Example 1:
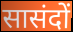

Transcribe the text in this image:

सासंदों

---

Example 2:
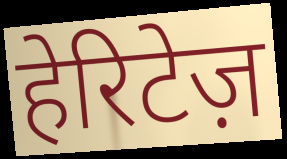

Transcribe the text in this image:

हेरिटेज़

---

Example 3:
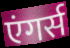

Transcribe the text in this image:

एंगर्स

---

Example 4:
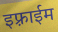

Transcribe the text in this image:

इफ़्राईम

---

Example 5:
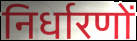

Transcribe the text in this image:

निर्धारणों